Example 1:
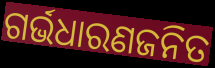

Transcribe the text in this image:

ଗର୍ଭଧାରଣଜନିତ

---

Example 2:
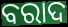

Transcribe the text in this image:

ବରାଦ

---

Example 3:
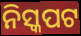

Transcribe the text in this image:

ନିସ୍କପଟ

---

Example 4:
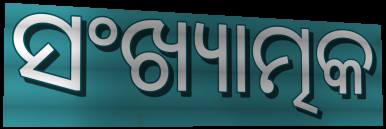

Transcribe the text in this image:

ସଂଖ୍ୟାତ୍ମକ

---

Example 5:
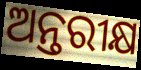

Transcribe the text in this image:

ଅନ୍ତରୀକ୍ଷ